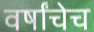
वर्षांचेच